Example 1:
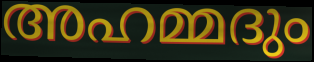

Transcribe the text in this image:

അഹമ്മദും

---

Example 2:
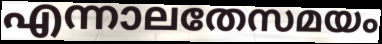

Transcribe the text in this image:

എന്നാലതേസമയം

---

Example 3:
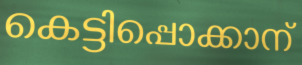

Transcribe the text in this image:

കെട്ടിപ്പൊക്കാന്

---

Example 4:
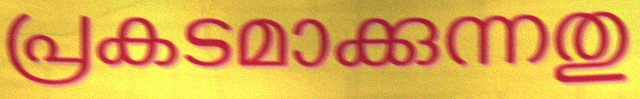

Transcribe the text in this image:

പ്രകടമാക്കുന്നതു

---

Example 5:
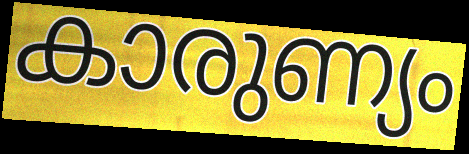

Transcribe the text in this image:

കാരുണ്യം